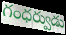
గంధర్వుడు